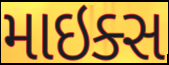
માઇક્સ